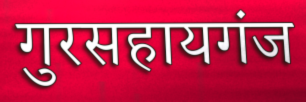
गुरसहायगंज